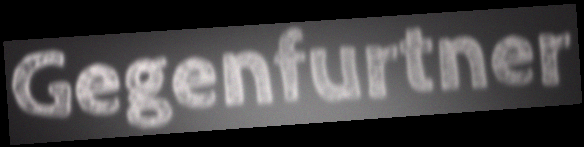
Gegenfurtner